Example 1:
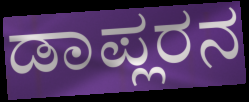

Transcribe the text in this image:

ಡಾಪ್ಲರನ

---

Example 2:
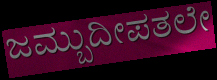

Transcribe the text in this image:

ಜಮ್ಬುದೀಪತಲೇ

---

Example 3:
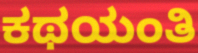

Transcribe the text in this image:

ಕಥಯಂತಿ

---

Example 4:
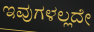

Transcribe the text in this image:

ಇವುಗಳಲ್ಲದೇ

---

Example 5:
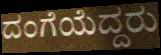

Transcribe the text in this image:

ದಂಗೆಯೆದ್ದರು